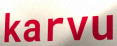
karvu